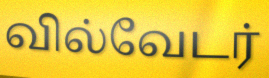
வில்வேடர்